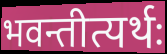
भवन्तीत्यर्थः